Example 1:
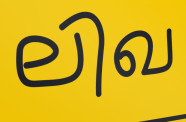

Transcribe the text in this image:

ലിഖ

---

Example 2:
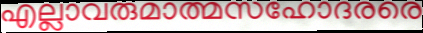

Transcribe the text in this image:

എല്ലാവരുമാത്മസഹോദരരെ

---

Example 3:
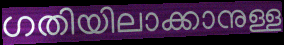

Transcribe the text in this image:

ഗതിയിലാക്കാനുള്ള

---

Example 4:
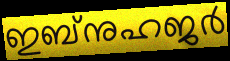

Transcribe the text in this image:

ഇബ്നുഹജർ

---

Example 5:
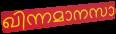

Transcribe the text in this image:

ഖിന്നമാനസാ